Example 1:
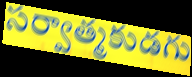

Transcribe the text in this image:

సర్వాత్మకుడగు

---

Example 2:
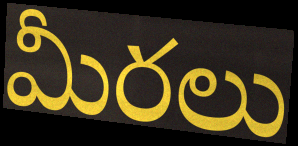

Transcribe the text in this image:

మీరలు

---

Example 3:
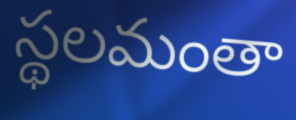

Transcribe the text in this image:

స్థలమంతా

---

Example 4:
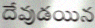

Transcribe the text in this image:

దేవుడయిన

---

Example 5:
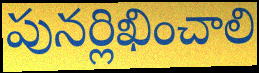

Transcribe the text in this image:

పునర్లిఖించాలి